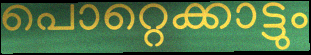
പൊറ്റെക്കാട്ടും